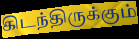
கிடந்திருக்கும்